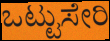
ಒಟ್ಟುಸೇರಿ